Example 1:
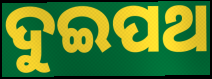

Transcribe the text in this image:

ଦୁଇପଥ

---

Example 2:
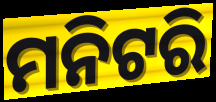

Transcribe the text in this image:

ମନିଟରି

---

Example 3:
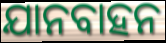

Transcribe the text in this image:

ଯାନବାହନ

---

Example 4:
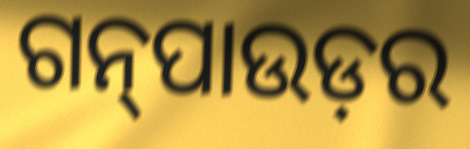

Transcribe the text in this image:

ଗନ୍‍ପାଉଡ଼ର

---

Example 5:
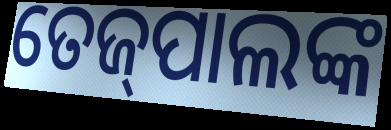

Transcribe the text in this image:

ତେଜ୍‌ପାଲଙ୍କ